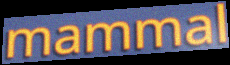
mammal